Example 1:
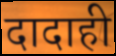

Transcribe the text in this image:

दादाही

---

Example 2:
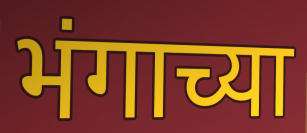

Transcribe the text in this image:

भंगाच्या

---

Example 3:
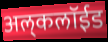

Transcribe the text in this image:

अल्कलॉईड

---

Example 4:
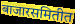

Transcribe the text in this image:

बाजारसमितीत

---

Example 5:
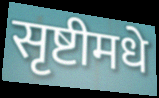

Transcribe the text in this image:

सृष्टीमधे